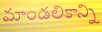
మాండలికాన్ని